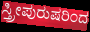
ಸ್ತ್ರೀಪುರುಷರಿಂದ